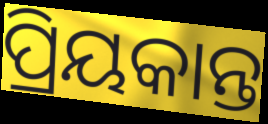
ପ୍ରିୟକାନ୍ତ